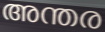
അന്തര